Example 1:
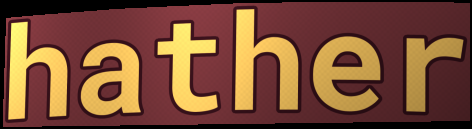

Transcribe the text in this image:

hather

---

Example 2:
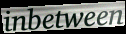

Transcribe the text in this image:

inbetween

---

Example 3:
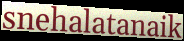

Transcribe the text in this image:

snehalatanaik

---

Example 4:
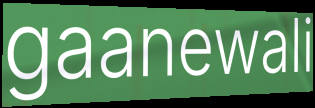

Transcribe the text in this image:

gaanewali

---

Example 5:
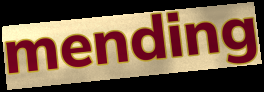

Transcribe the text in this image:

mending